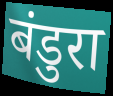
बंडुरा